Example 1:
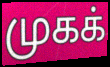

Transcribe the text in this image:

முகக்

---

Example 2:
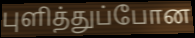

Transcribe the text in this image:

புளித்துப்போன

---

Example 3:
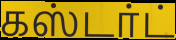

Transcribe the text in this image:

கஸ்டர்ட்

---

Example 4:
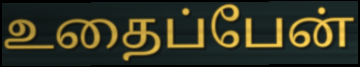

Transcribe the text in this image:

உதைப்பேன்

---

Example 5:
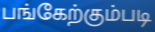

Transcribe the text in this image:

பங்கேற்கும்படி